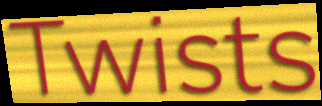
Twists